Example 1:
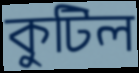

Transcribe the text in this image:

কুটিল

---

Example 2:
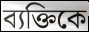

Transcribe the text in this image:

ব্যক্তিকে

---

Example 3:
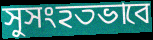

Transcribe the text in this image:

সুসংহতভাবে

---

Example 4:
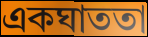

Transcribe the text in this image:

একঘাততা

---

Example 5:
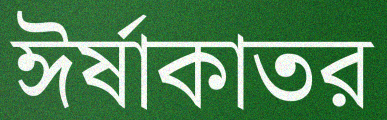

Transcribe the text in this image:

ঈর্ষাকাতর